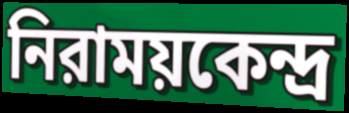
নিরাময়কেন্দ্র